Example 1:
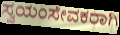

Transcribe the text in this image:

ಸ್ವಯಂಸೇವಕರಾಗಿ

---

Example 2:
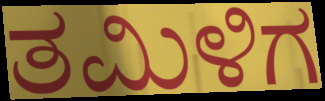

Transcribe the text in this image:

ತಮಿಳಿಗ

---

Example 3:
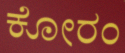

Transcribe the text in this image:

ಕೋರಂ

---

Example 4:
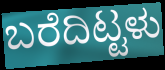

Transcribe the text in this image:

ಬರೆದಿಟ್ಟಳು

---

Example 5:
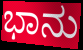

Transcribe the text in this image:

ಭಾನು